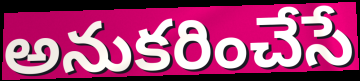
అనుకరించేసే